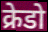
क्रेडो